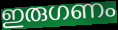
ഇരുഗണം